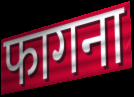
फागना